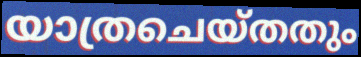
യാത്രചെയ്തതും